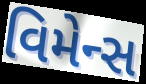
વિમેન્સ